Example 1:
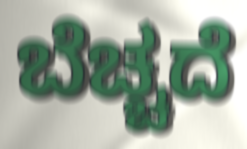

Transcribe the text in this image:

ಬೆಚ್ಚದೆ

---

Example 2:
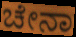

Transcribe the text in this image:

ಚೇನಾ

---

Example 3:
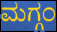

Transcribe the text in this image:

ಮಗ್ಗಂ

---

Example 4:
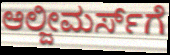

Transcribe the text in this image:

ಆಲ್ಜೀಮರ್ಸ್‌ಗೆ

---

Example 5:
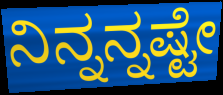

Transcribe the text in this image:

ನಿನ್ನನ್ನಷ್ಟೇ